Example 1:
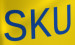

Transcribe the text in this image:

SKU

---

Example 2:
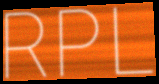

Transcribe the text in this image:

RPL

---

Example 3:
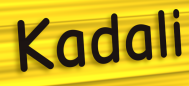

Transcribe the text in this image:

Kadali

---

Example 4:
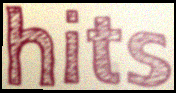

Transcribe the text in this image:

hits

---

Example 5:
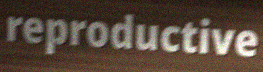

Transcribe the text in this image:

reproductive